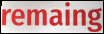
remaing